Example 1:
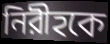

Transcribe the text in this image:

নিরীহকে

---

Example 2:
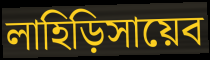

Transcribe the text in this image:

লাহিড়িসায়েব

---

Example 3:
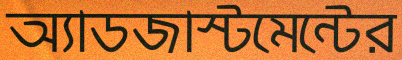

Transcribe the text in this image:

অ্যাডজাস্টমেন্টের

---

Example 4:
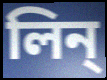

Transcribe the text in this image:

লিন্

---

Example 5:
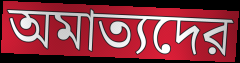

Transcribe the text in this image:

অমাত্যদের